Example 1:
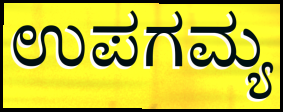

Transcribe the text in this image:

ಉಪಗಮ್ಯ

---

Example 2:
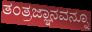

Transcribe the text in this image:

ತಂತ್ರಜ್ಞಾನವನ್ನೂ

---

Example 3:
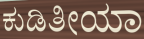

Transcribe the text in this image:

ಕುಡಿತೀಯಾ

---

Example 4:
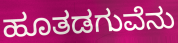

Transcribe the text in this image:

ಹೂತಡಗುವೆನು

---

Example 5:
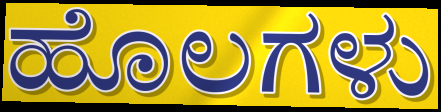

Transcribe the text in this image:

ಹೊಲಗಳು